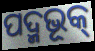
ପଦ୍ମଭୂକ୍